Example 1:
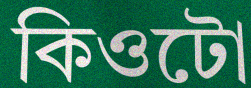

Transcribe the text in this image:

কিওটো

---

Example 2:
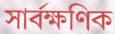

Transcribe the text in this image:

সার্বক্ষণিক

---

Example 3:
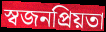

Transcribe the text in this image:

স্বজনপ্রিয়তা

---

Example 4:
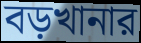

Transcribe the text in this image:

বড়খানার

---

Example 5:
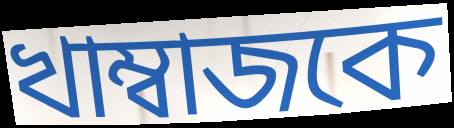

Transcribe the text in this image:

খাম্বাজকে